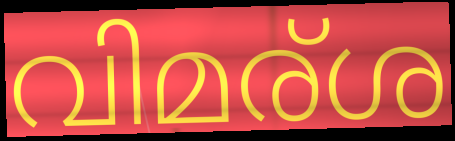
വിമര്ശ